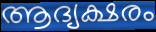
ആദ്യക്ഷരം